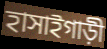
হাসাইগাড়ী